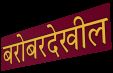
बरोबरदेखील